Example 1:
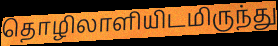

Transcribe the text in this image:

தொழிலாளியிடமிருந்து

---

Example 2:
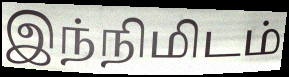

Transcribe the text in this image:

இந்நிமிடம்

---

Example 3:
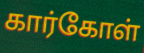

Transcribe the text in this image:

கார்கோள்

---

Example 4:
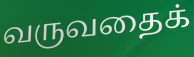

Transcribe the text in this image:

வருவதைக்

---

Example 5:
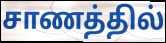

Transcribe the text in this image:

சாணத்தில்